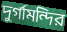
দুর্গামন্দির